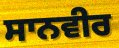
ਸਾਨਵੀਰ